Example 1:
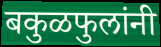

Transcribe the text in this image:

बकुळफुलांनी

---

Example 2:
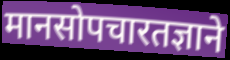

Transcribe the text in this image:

मानसोपचारतज्ञाने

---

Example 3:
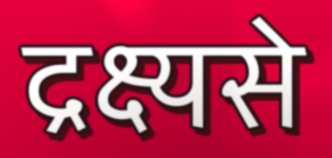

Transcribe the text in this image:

द्रक्ष्यसे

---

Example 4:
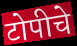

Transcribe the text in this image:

टोपीचे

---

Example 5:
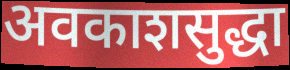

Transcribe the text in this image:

अवकाशसुद्धा